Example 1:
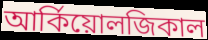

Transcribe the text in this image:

আর্কিয়োলজিকাল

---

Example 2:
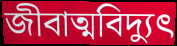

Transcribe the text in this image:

জীবাত্মবিদ্যুৎ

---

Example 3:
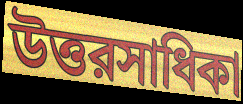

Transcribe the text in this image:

উত্তরসাধিকা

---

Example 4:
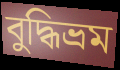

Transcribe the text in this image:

বুদ্ধিভ্রম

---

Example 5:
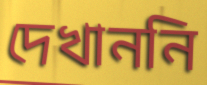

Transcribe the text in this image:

দেখাননি